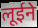
लूईने